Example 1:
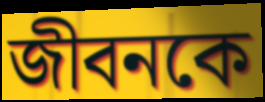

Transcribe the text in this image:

জীবনকে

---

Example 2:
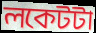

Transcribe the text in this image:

লকেটটা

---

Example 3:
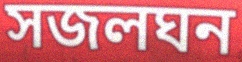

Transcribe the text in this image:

সজলঘন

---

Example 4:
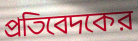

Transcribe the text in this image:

প্রতিবেদকের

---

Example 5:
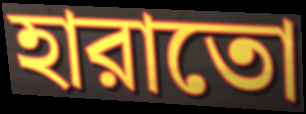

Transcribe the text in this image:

হারাতো